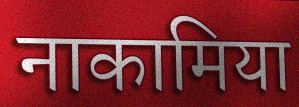
नाकामिया